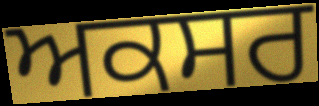
ਅਕਸਰ